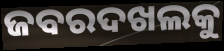
ଜବରଦଖଲକୁ